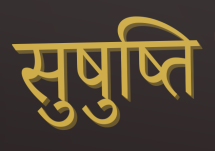
सुषुष्ति